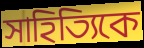
সাহিত্যিকে